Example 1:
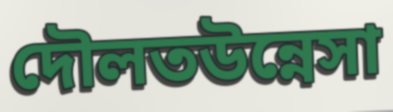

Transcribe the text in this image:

দৌলতউন্নেসা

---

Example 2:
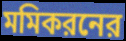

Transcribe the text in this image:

মমিকরনের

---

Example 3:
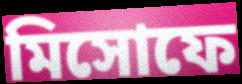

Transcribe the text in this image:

মিসোফে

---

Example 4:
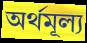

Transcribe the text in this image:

অর্থমূল্য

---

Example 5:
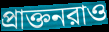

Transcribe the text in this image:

প্রাক্তনরাও